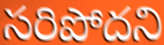
సరిపోదని